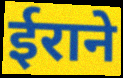
ईराने